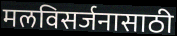
मलविसर्जनासाठी